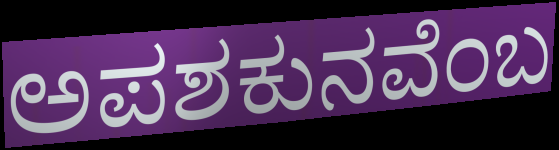
ಅಪಶಕುನವೆಂಬ